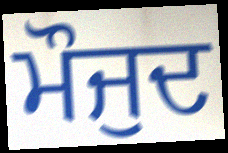
ਮੌਜੁਦ